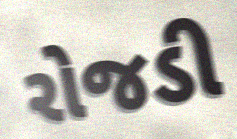
રોજડી